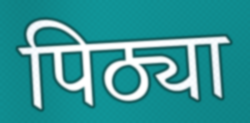
पिठ्या